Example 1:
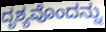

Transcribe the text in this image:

ದೃಶ್ಯವೊಂದನ್ನು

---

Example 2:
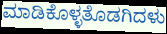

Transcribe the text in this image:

ಮಾಡಿಕೊಳ್ಳತೊಡಗಿದಳು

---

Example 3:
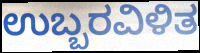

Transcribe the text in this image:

ಉಬ್ಬರವಿಳಿತ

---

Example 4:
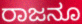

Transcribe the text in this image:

ರಾಜನೂ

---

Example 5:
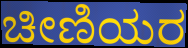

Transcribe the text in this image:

ಚೀಣಿಯರ